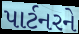
પાર્ટનરને